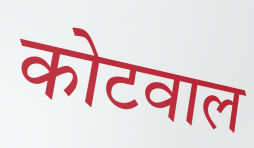
कोटवाल